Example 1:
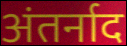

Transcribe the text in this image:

अंतर्नाद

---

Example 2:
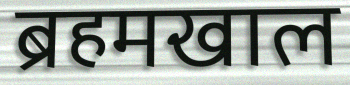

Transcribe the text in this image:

ब्रहमखाल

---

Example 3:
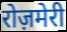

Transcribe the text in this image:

रोज़मेरी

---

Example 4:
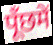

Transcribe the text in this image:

पूँछमें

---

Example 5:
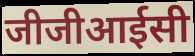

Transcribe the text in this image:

जीजीआईसी